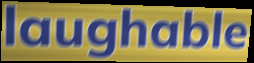
laughable